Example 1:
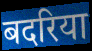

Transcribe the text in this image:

बदरिया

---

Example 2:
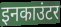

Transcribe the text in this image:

इनकाउंटर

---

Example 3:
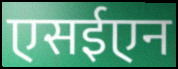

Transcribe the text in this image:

एसईएन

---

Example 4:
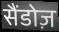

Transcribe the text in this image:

सैंडोज़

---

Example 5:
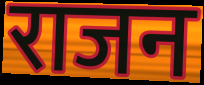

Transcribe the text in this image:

राजन